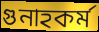
গুনাহকর্ম